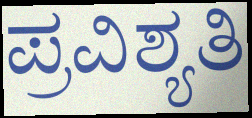
ಪ್ರವಿಶ್ಯತಿ